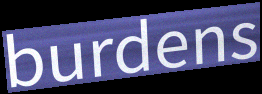
burdens